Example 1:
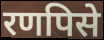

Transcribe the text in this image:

रणपिसे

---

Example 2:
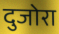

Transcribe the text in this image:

दुजोरा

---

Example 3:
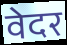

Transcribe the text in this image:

वेदर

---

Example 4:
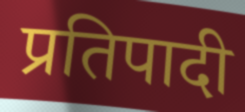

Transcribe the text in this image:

प्रतिपादी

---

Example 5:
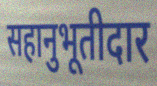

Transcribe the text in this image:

सहानुभूतीदार